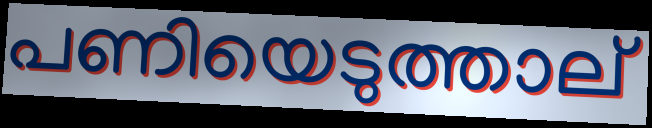
പണിയെടുത്താല്